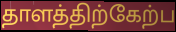
தாளத்திற்கேற்ப